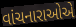
વાંચનારાઓએ